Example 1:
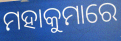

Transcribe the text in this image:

ମହାକୁମାରେ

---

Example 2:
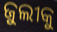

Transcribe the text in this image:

ଜୁଲୀକୁ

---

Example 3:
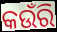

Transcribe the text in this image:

କଉଁରି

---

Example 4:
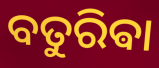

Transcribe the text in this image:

ବତୁରିଵା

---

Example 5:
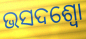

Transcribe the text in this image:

ଭସଦଶ୍ଵୋ